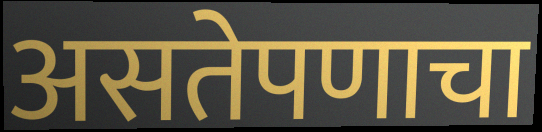
असतेपणाचा